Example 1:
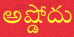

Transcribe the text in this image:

అష్డోదు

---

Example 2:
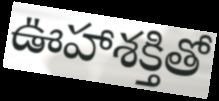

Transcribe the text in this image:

ఊహాశక్తితో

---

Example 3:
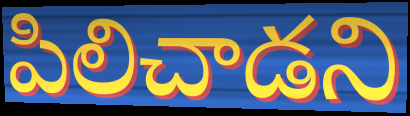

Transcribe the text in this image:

పిలిచాడని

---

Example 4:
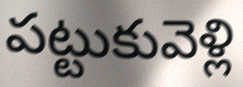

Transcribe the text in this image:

పట్టుకువెళ్లి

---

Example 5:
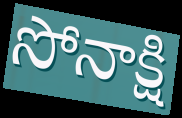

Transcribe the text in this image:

సోనాక్షి